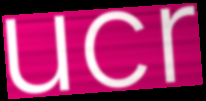
ucr